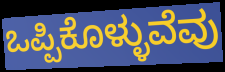
ಒಪ್ಪಿಕೊಳ್ಳುವೆವು